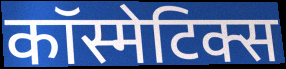
कॉस्मेटिक्स